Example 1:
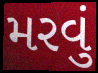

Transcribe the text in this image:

મરવું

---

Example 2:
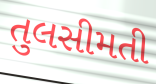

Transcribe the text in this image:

તુલસીમતી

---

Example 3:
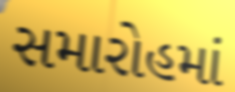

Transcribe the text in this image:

સમારોહમાં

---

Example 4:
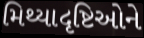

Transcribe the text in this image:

મિથ્યાદૃષ્ટિઓને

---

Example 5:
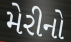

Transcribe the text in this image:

મેરીનો